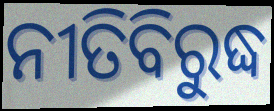
ନୀତିବିରୁଦ୍ଧ